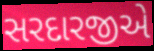
સરદારજીએ